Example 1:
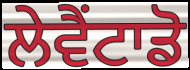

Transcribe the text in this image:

ਲੇਵੈਂਟਾਡੋ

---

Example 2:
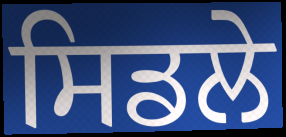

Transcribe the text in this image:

ਸਿਡਲੇ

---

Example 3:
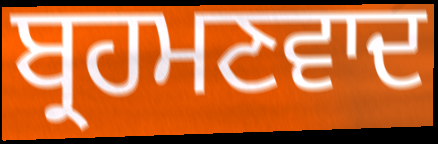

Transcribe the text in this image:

ਬ੍ਰਹਮਣਵਾਦ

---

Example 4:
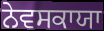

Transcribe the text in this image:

ਨੇਵਸਕਾਯਾ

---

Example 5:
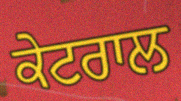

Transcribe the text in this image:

ਕੇਟਰਾਲ